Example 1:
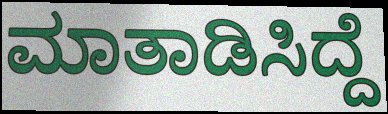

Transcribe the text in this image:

ಮಾತಾಡಿಸಿದ್ದೆ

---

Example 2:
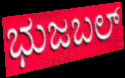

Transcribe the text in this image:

ಭುಜಬಲ್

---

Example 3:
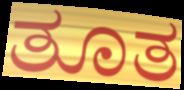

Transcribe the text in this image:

ತೂತ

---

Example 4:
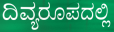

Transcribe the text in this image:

ದಿವ್ಯರೂಪದಲ್ಲಿ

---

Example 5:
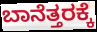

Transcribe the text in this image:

ಬಾನೆತ್ತರಕ್ಕೆ